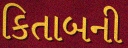
કિતાબની